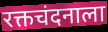
रक्तचंदनाला